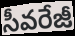
సీవరేజీ